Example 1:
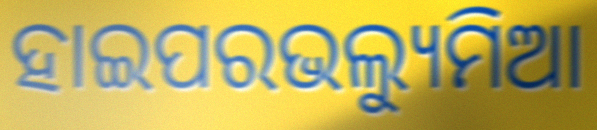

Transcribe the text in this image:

ହାଇପରଭଲ୍ୟୁମିଆ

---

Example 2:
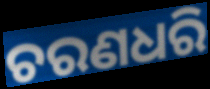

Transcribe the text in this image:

ଚରଣଧରି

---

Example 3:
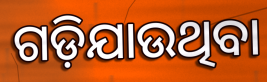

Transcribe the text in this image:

ଗଡ଼ିଯାଉଥିବା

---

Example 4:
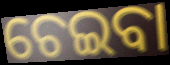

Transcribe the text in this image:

ଚେଇବା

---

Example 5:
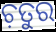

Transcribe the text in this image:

ଚ଼ତୁର